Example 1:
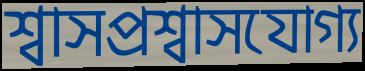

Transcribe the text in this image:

শ্বাসপ্রশ্বাসযোগ্য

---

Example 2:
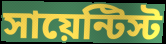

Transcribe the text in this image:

সায়েন্টিস্ট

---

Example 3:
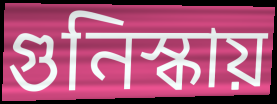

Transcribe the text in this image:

গুনিস্কায়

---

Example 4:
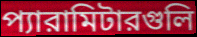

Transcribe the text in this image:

প্যারামিটারগুলি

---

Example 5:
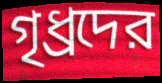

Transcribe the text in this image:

গৃধ্রদের